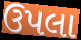
ઉપલા